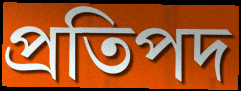
প্ৰতিপদ